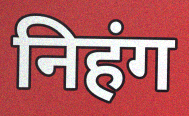
निहंग